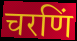
चरणिं